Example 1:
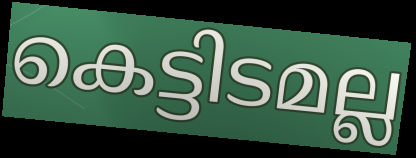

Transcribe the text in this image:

കെട്ടിടമല്ല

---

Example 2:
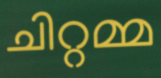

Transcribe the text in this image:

ചിറ്റമ്മ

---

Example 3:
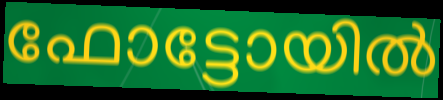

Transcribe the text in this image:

ഫോട്ടോയിൽ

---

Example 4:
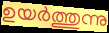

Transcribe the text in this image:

ഉയർത്തുന്നു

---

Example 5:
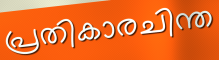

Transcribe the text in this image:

പ്രതികാരചിന്ത